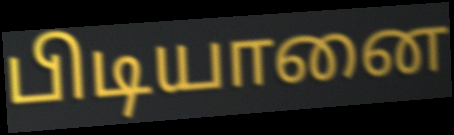
பிடியானை